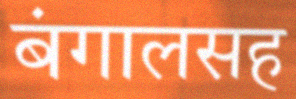
बंगालसह